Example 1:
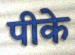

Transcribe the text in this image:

पीके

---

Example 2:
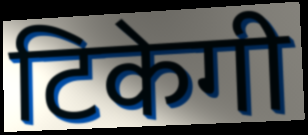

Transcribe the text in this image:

टिकेगी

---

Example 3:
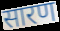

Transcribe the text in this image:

सारण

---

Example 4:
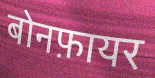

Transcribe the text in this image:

बोनफ़ायर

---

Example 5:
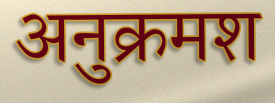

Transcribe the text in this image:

अनुक्रमश